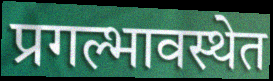
प्रगल्भावस्थेत